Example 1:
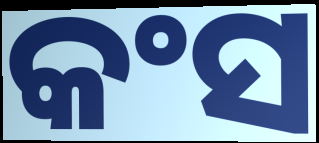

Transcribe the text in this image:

କଂସ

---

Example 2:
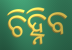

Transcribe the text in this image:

ଚିହ୍ନିବ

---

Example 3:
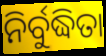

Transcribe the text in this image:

ନିର୍ବୁଦ୍ଧିତା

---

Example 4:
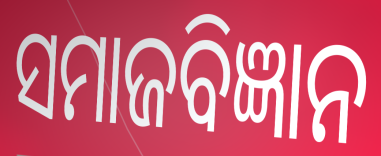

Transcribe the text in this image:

ସମାଜବିଜ୍ଞାନ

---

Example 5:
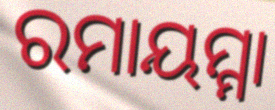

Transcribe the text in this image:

ରମାୟମ୍ମା